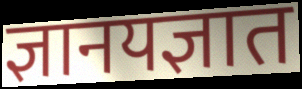
ज्ञानयज्ञात